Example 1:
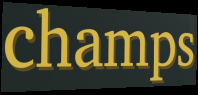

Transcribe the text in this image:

champs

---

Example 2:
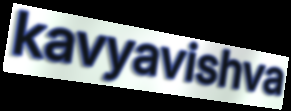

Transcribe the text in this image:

kavyavishva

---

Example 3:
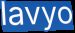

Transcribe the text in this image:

lavyo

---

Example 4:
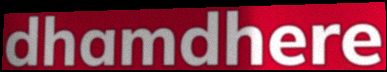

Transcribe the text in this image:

dhamdhere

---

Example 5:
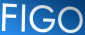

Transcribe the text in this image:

FIGO